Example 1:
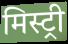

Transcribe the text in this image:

मिस्ट्री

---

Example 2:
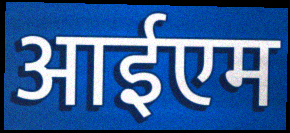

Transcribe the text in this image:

आईएम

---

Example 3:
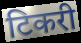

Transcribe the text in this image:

टिकरी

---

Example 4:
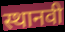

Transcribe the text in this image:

स्थानवी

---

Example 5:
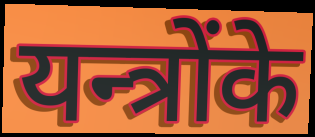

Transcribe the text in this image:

यन्त्रोंके